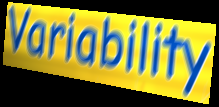
Variability